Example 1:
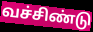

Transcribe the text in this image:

வச்சிண்டு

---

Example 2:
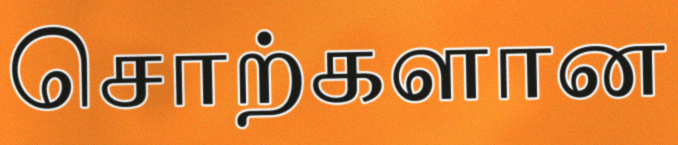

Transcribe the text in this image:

சொற்களான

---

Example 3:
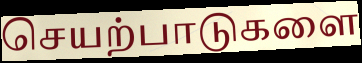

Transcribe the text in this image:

செயற்பாடுகளை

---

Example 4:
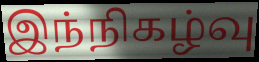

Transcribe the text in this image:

இந்நிகழ்வு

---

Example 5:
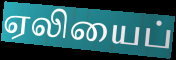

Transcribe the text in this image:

ஏலியைப்